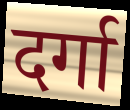
दर्गा